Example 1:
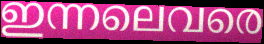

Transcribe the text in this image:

ഇന്നലെവരെ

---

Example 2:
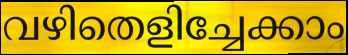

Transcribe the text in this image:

വഴിതെളിച്ചേക്കാം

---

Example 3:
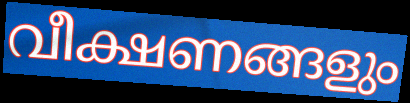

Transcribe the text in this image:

വീക്ഷണങ്ങളും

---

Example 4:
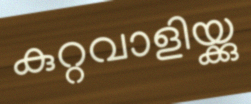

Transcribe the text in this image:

കുറ്റവാളിയ്ക്കു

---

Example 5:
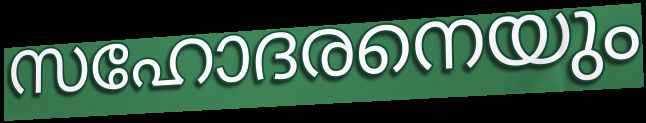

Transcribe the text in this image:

സഹോദരനെയും